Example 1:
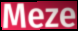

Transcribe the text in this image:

Meze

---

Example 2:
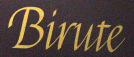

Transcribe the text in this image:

Birute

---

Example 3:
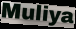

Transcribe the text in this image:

Muliya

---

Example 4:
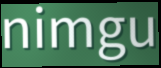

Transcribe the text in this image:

nimgu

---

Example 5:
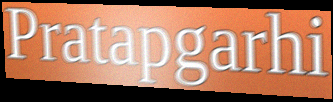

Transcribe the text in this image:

Pratapgarhi